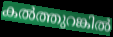
കൽത്തുറങ്കിൽ